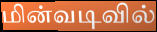
மின்வடிவில்